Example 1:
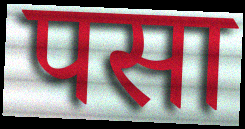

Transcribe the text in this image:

पसा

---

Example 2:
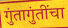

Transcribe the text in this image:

गुंतागुंतींचा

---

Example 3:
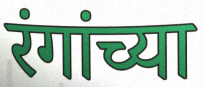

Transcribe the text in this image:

रंगांच्या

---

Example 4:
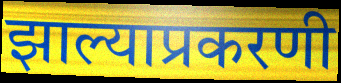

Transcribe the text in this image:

झाल्याप्रकरणी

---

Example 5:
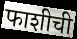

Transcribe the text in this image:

फाशीची